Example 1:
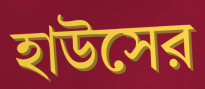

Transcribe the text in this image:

হাউসের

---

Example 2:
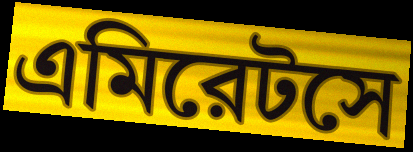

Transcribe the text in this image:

এমিরেটসে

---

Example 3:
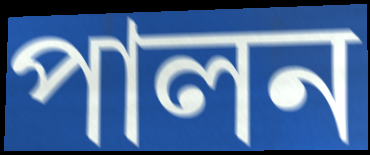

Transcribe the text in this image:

পালন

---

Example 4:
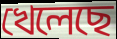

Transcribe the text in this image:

খেলেছে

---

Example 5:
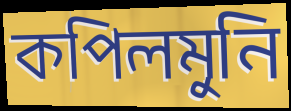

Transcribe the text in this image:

কপিলমুনি